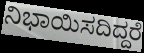
ನಿಭಾಯಿಸದಿದ್ದರೆ